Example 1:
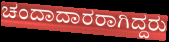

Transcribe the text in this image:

ಚಂದಾದಾರರಾಗಿದ್ದರು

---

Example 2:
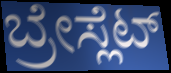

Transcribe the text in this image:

ಬ್ರೇಸ್ಲೆಟ್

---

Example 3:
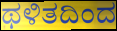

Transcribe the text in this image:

ಥಳಿತದಿಂದ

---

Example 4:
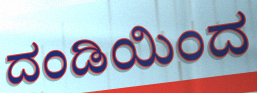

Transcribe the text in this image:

ದಂಡಿಯಿಂದ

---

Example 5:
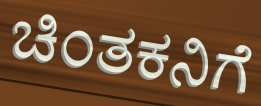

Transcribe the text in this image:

ಚಿಂತಕನಿಗೆ